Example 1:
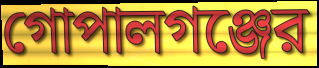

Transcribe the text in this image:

গোপালগঞ্জের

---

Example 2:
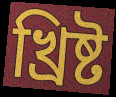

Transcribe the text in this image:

খ্রিষ্ট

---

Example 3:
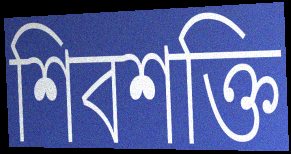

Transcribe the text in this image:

শিবশক্তি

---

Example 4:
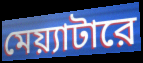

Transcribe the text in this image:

মেয়্যাটারে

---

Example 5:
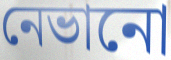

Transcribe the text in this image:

নেভানো